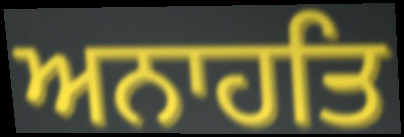
ਅਨਾਹਤਿ